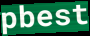
pbest